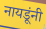
नायडूंनी